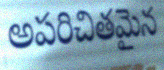
అపరిచితమైన